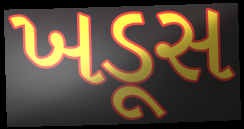
ખડૂસ